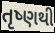
તૃષ્ણથી